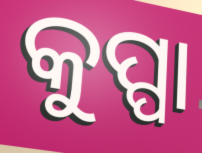
କୁପ୍ପା